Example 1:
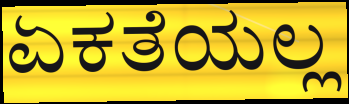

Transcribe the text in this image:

ಏಕತೆಯಲ್ಲ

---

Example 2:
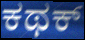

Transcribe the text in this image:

ಕಥಕ್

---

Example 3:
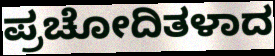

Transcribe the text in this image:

ಪ್ರಚೋದಿತಳಾದ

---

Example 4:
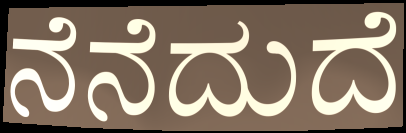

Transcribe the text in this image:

ನೆನೆದುದೆ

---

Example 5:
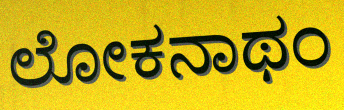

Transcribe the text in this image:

ಲೋಕನಾಥಂ